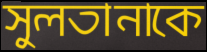
সুলতানাকে